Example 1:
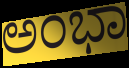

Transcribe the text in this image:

ಅಂಭಾ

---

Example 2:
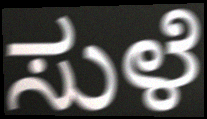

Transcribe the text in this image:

ಸುಳೆ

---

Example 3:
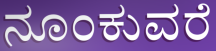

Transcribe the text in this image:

ನೂಂಕುವರೆ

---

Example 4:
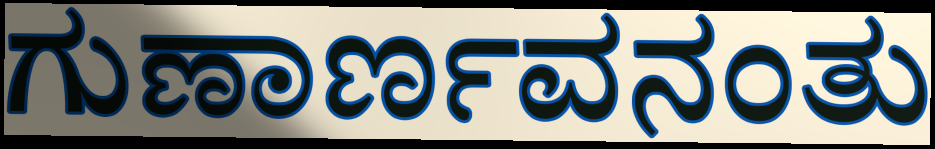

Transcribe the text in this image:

ಗುಣಾರ್ಣವನಂತು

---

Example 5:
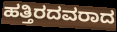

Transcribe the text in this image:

ಹತ್ತಿರದವರಾದ